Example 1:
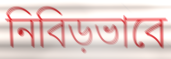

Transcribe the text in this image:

নিবিড়ভাবে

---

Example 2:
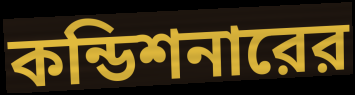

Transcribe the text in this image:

কন্ডিশনারের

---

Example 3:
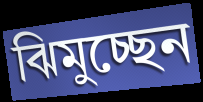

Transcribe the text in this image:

ঝিমুচ্ছেন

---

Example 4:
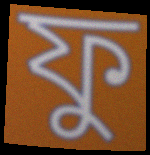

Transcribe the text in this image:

ফু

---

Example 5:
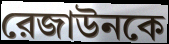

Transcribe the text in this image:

রেজাউনকে